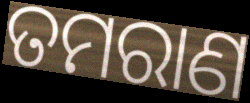
ତମରାଣ